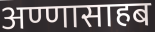
अण्णासाहब